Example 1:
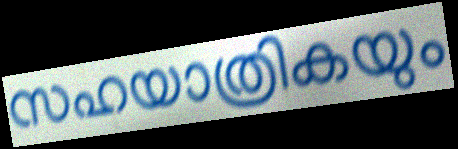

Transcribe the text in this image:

സഹയാത്രികയും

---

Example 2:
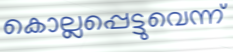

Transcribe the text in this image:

കൊല്ലപ്പെട്ടുവെന്ന്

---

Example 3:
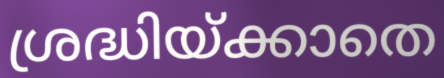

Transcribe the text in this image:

ശ്രദ്ധിയ്ക്കാതെ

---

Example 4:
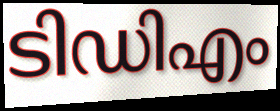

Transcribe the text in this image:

ടിഡിഎം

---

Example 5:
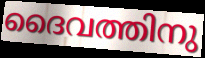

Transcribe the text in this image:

ദൈവത്തിനു